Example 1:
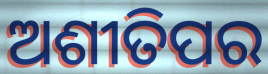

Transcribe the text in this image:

ଅଶୀତିପର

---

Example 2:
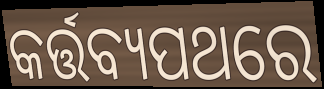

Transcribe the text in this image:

କର୍ତ୍ତବ୍ୟପଥରେ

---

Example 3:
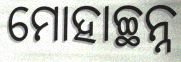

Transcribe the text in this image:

ମୋହାଚ୍ଛନ୍ନ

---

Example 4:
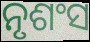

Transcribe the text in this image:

ନୃଶଂସ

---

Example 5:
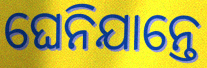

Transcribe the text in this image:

ଘେନିଯାନ୍ତେ